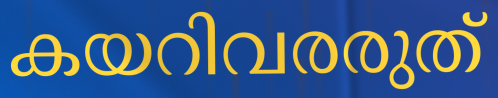
കയറിവരരുത്